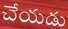
చేయడు